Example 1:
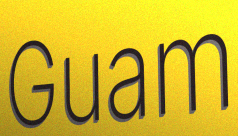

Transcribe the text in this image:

Guam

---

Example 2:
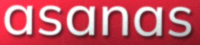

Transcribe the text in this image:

asanas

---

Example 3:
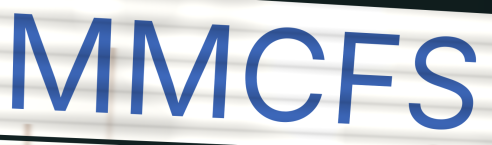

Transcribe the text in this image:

MMCFS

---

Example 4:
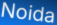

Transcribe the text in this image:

Noida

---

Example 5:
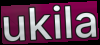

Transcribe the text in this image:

ukila